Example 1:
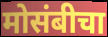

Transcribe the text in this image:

मोसंबीचा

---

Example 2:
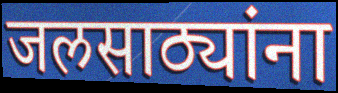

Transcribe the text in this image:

जलसाठ्यांना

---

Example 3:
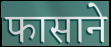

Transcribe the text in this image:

फासाने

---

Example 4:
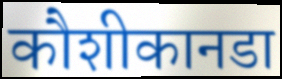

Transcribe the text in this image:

कौशीकानडा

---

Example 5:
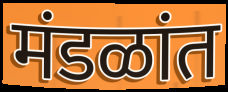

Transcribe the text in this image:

मंडळांत